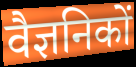
वैज्ञनिकों